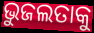
ଭୁଜଲତାକୁ